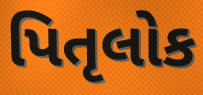
પિતૃલોક